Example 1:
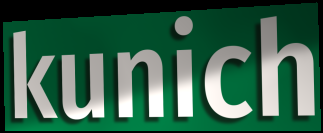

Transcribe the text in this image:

kunich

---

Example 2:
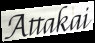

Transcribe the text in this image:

Attakai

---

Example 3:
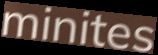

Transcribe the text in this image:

minites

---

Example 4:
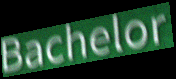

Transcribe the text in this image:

Bachelor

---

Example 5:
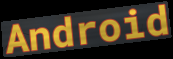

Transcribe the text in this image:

Android